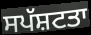
ਸਪੱਸ਼ਟਤਾ